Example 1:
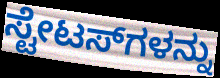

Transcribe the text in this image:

ಸ್ಟೇಟಸ್‌ಗಳನ್ನು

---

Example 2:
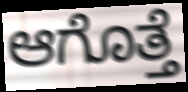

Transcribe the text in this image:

ಆಗೊತ್ತೆ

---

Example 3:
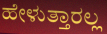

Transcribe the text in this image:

ಹೇಳುತ್ತಾರಲ್ಲ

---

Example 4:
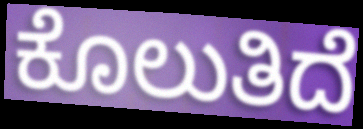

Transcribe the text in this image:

ಕೊಲುತಿದೆ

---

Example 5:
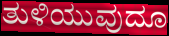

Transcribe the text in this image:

ತುಳಿಯುವುದೂ